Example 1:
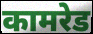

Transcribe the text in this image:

कामरेड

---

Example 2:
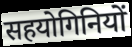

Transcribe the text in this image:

सहयोगिनियों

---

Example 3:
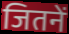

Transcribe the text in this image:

जितनें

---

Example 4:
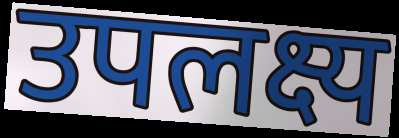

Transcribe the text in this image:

उपलक्ष्य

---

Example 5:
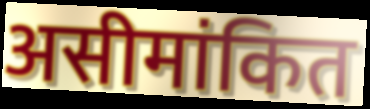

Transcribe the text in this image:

असीमांकित